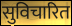
सुविचारित